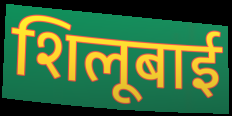
शिलूबाई